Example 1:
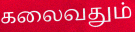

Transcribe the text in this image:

கலைவதும்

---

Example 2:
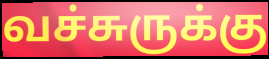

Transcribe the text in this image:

வச்சுருக்கு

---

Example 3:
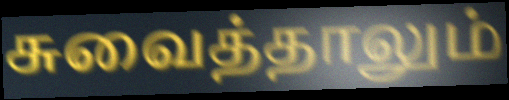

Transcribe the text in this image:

சுவைத்தாலும்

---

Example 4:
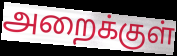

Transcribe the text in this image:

அறைக்குள்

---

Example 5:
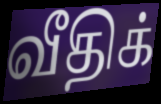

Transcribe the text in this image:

வீதிக்